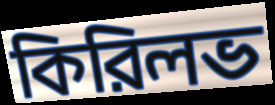
কিরিলভ